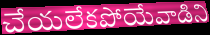
చేయలేకపోయేవాడిని